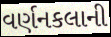
વર્ણનકલાની